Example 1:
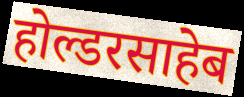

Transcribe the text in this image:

होल्डरसाहेब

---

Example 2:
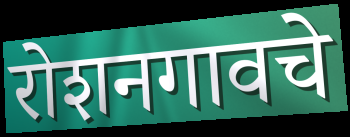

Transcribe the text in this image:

रोशनगावचे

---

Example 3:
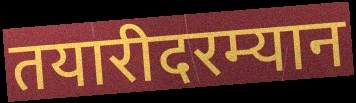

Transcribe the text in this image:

तयारीदरम्यान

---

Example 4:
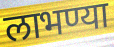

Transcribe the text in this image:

लाभण्या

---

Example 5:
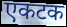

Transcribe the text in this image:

एकटक